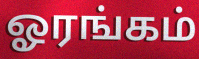
ஓரங்கம்